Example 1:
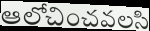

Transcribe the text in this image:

ఆలోచించవలసి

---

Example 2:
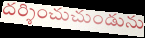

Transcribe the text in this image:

దర్శించుచుండును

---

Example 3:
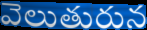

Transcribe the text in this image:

వెలుతురున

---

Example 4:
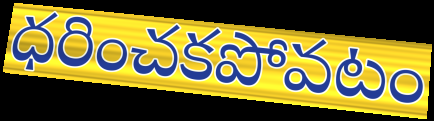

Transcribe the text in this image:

ధరించకపోవటం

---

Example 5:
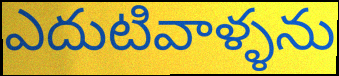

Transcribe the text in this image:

ఎదుటివాళ్ళను